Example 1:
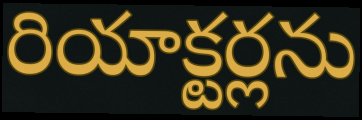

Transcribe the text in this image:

రియాక్టర్లను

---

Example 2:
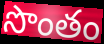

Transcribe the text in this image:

సొంతం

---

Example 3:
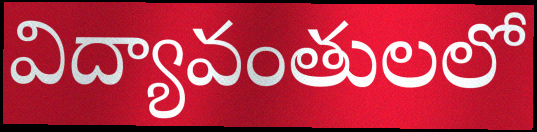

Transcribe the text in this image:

విద్యావంతులలో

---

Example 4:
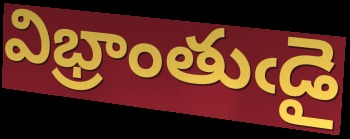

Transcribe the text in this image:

విభ్రాంతుఁడై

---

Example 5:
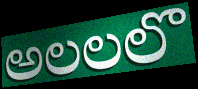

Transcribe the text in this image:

అలలలొ